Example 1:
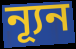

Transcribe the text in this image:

ন্যূন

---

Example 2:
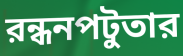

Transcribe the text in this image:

রন্ধনপটুতার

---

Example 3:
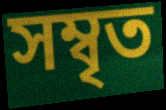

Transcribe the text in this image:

সম্বৃত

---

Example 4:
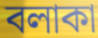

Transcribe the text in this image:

বলাকা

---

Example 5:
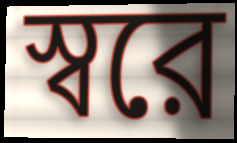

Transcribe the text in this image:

স্বরে